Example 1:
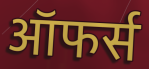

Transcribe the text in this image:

ऑफर्स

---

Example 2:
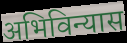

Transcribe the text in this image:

अभिविन्यास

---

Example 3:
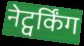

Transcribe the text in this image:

नेट्वर्किंग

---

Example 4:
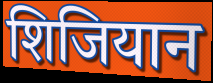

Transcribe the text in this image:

शिजियान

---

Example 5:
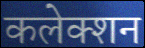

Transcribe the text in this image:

कलेक्शन